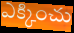
ఎక్కించు